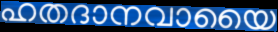
ഹതദാനവായൈ